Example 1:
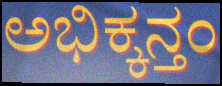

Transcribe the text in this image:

ಅಭಿಕ್ಕನ್ತಂ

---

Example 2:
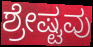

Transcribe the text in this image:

ಶ್ರೇಷ್ಟವು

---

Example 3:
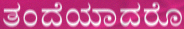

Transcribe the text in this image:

ತಂದೆಯಾದರೊ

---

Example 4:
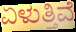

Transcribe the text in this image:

ಏಳುತ್ತಿವೆ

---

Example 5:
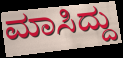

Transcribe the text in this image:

ಮಾಸಿದ್ದು